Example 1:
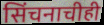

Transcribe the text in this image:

सिंचनाचीही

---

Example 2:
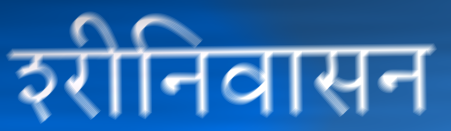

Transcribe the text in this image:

श्रीनिवासन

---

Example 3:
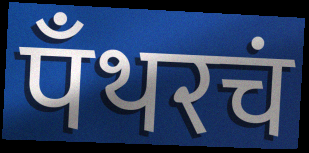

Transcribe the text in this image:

पँथरचं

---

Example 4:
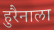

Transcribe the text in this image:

हुरैनाला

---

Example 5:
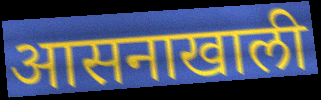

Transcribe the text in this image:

आसनाखाली